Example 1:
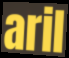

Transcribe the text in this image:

aril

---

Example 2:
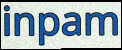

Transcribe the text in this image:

inpam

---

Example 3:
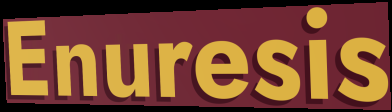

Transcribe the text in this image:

Enuresis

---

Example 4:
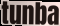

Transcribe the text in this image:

tunba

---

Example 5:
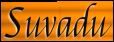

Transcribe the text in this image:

Suvadu